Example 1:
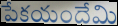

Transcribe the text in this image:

పేకయందేమి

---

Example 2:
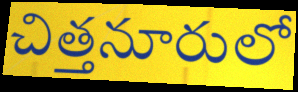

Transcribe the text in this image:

చిత్తనూరులో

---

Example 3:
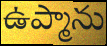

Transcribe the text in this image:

ఉప్మాను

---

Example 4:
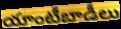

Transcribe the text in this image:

యాంటీబాడీలు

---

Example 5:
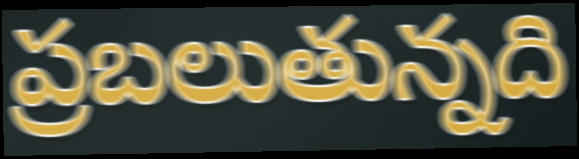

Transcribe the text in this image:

ప్రబలుతున్నది